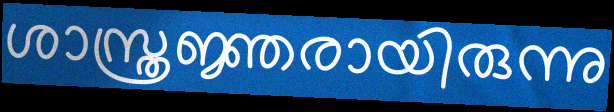
ശാസ്ത്രജ്ഞരായിരുന്നു